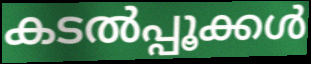
കടൽപ്പൂക്കൾ